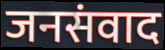
जनसंवाद